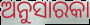
ଅନୁସାରକା